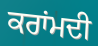
ਕਰਾਂਮਦੀ